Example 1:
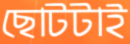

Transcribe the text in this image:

ছোটটাই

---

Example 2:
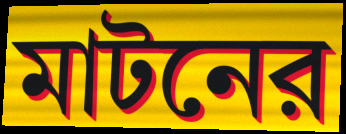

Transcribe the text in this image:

মাটনের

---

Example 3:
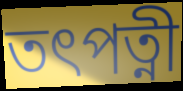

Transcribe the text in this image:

তৎপত্নী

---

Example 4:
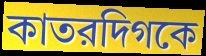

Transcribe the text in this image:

কাতরদিগকে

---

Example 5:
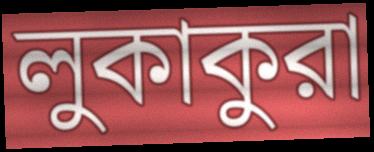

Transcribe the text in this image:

লুকাকুরা